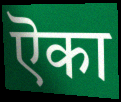
ऎका